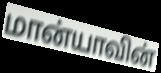
மான்யாவின்